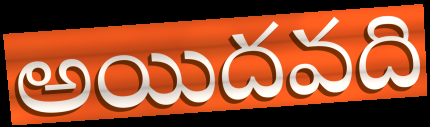
అయిదవది